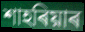
শাহৰিয়াৰ